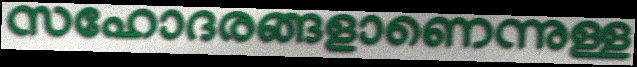
സഹോദരങ്ങളാണെന്നുള്ള